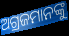
ଅଗ୍ରଜମାନଙ୍କୁ